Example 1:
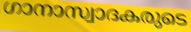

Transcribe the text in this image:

ഗാനാസ്വാദകരുടെ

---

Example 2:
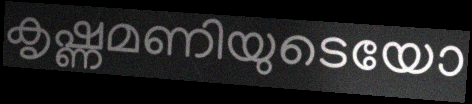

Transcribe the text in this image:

കൃഷ്ണമണിയുടെയോ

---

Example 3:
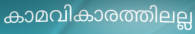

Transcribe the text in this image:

കാമവികാരത്തിലല്ല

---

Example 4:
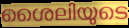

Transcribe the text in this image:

ശൈലിയുടെ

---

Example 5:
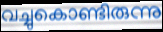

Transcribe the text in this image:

വച്ചുകൊണ്ടിരുന്നു